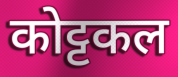
कोट्टकल